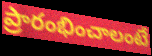
ప్రారంభించాలంటే